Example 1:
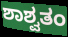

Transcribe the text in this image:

ಶಾಶ್ವತಂ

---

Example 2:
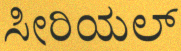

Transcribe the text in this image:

ಸೀರಿಯಲ್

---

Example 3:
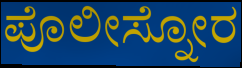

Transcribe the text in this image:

ಪೊಲೀಸ್ನೋರ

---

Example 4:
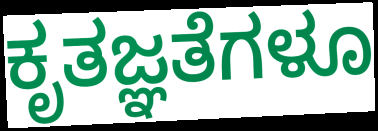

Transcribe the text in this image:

ಕೃತಜ್ಞತೆಗಳೂ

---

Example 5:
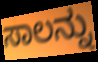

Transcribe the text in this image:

ಸಾಲನ್ನು